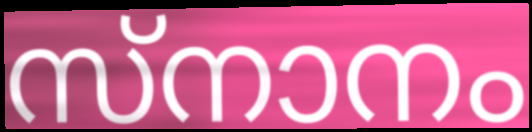
സ്നാനം